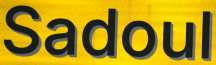
Sadoul